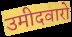
उमीदवारो